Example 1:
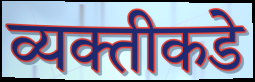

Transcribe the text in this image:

व्यक्तीकडे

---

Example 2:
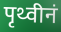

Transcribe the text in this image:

पृथ्वीनं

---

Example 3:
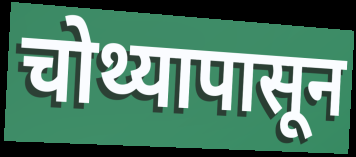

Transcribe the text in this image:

चोथ्यापासून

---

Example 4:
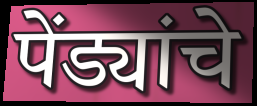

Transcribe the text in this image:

पेंड्यांचे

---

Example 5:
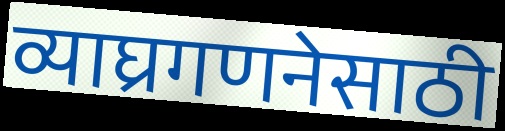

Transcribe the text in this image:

व्याघ्रगणनेसाठी